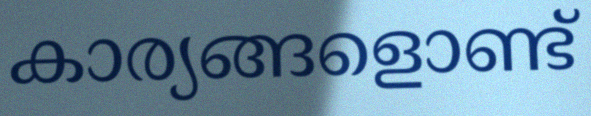
കാര്യങ്ങളൊണ്ട്